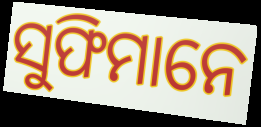
ସୁଫିମାନେ